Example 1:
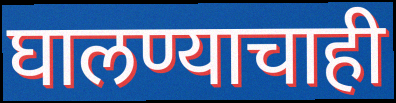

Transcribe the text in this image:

घालण्याचाही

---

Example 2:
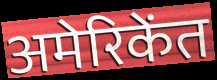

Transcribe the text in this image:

अमेरिकेंत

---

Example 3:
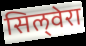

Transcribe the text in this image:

सिल्वेरा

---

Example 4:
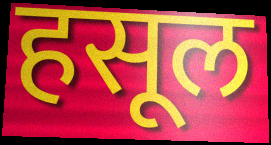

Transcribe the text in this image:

हसूल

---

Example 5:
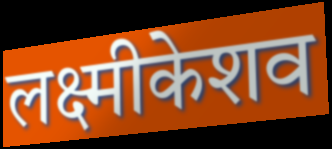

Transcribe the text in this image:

लक्ष्मीकेशव